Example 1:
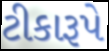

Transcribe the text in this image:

ટીકારૂપે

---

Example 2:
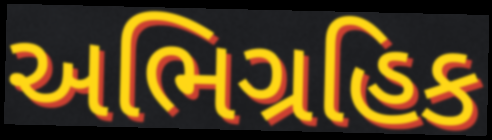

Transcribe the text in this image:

અભિગ્રહિક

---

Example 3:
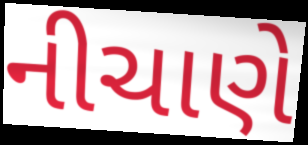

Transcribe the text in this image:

નીચાણે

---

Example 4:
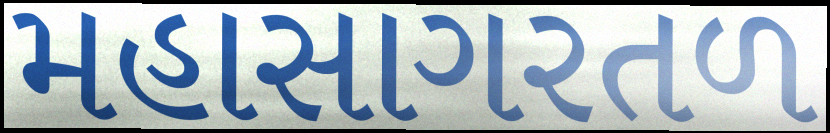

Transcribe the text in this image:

મહાસાગરતળ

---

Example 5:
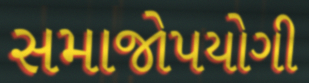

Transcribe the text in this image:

સમાજોપયોગી